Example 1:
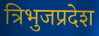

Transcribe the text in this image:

त्रिभुजप्रदेश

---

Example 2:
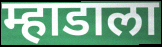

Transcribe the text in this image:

म्हाडाला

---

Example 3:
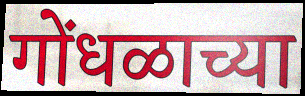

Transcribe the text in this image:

गोंधळाच्या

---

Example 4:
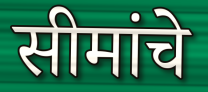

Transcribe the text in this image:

सीमांचे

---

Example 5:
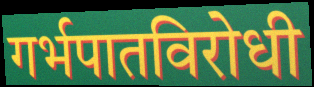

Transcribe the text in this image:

गर्भपातविरोधी